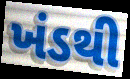
ખંડથી